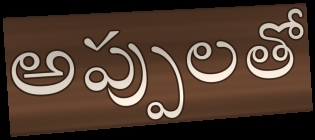
అప్పులతో